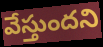
వేస్తుందని